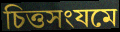
চিত্তসংযমে